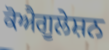
ਕੋਐਗੂਲੇਸ਼ਨ